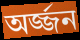
অর্জ্জন